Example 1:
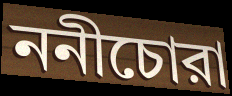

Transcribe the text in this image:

ননীচোরা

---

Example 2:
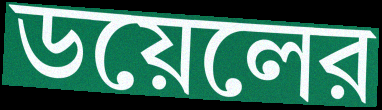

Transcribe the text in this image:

ডয়েলের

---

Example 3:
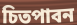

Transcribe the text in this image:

চিতপাবন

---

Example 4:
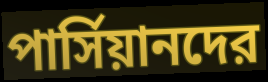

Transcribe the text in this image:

পার্সিয়ানদের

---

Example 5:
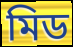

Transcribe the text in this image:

মিড